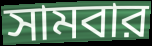
সামবার